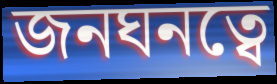
জনঘনত্বে